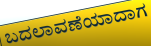
ಬದಲಾವಣೆಯಾದಾಗ